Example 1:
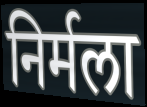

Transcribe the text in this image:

निर्मला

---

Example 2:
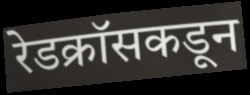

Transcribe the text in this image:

रेडक्रॉसकडून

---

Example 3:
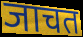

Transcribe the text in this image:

जाचत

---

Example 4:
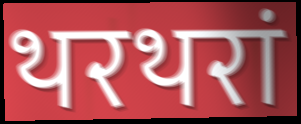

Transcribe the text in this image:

थरथरां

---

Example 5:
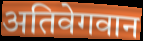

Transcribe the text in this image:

अतिवेगवान